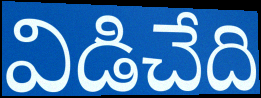
విడిచేది